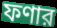
ফণার